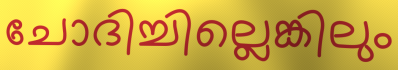
ചോദിച്ചില്ലെങ്കിലും